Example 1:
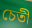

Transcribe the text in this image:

চেতী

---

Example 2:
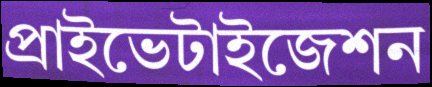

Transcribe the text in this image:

প্রাইভেটাইজেশন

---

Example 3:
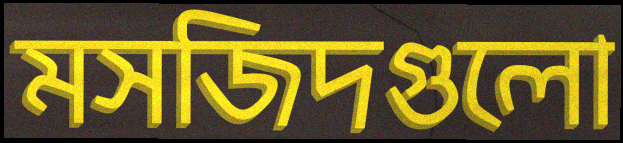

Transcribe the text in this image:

মসজিদগুলো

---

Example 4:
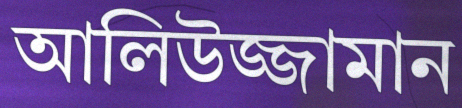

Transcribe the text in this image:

আলিউজ্জামান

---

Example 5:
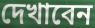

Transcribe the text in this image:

দেখাবেন